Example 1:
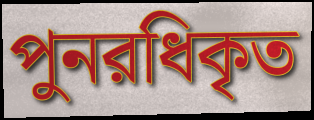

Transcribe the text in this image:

পুনরধিকৃত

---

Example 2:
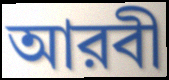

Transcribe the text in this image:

আরবী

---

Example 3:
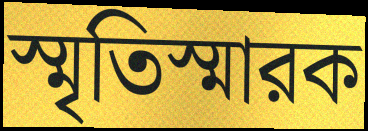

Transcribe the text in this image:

স্মৃতিস্মারক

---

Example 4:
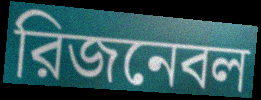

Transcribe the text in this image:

রিজনেবল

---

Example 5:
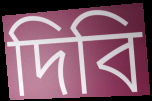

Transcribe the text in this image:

দিবি